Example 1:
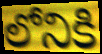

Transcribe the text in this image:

లోనికి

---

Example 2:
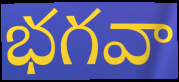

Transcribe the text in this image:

భగవా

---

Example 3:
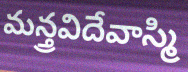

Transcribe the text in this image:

మన్త్రవిదేవాస్మి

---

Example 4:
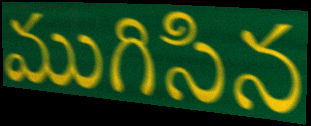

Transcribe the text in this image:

ముగిసిన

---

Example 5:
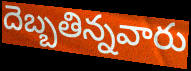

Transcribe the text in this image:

దెబ్బతిన్నవారు